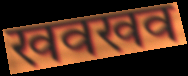
खवखव